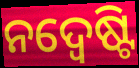
ନଦ୍ୱେଷ୍ଟି